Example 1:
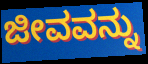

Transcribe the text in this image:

ಜೀವವನ್ನು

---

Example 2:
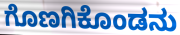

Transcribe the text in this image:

ಗೊಣಗಿಕೊಂಡನು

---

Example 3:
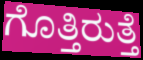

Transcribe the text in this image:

ಗೊತ್ತಿರುತ್ತೆ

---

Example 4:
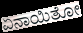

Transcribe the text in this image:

ಏನಾಯಿತೋ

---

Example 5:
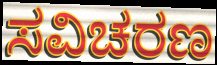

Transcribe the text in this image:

ಸವಿಚರಣ